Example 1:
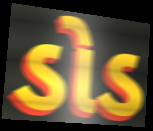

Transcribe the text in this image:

ડોડ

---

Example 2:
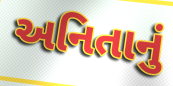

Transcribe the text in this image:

અનિતાનું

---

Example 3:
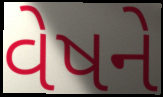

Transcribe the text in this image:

વેષને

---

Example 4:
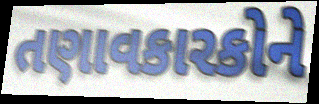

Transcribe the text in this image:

તણાવકારકોને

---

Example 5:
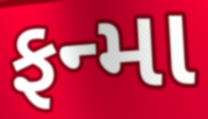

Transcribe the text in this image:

ફન્મા